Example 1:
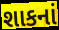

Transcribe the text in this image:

શાકનાં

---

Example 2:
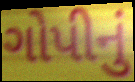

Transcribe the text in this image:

ગોપીનું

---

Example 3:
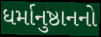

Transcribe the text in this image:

ધર્માનુષ્ઠાનનો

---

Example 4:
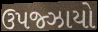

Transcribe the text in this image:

ઉપજ્ઝાયો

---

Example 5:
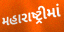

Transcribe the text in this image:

મહારાષ્ટ્રીમાં